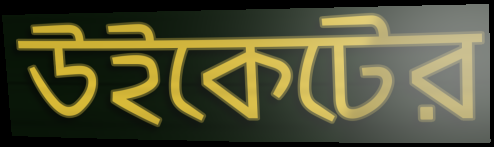
উইকেটের